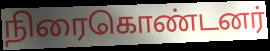
நிரைகொண்டனர்